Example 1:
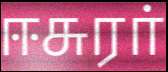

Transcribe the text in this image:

ஈசுரர்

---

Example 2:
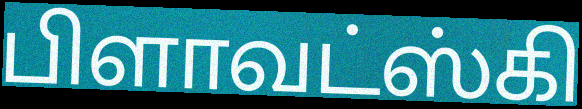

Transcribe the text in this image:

பிளாவட்ஸ்கி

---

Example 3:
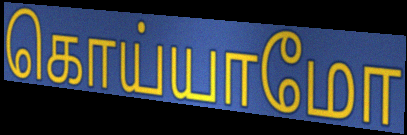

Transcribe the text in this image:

கொய்யாமோ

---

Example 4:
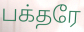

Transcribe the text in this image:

பக்தரே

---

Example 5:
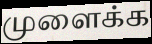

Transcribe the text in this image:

முளைக்க